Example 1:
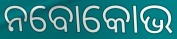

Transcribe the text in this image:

ନବୋକୋଭ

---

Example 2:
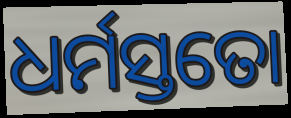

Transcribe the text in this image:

ଧର୍ମସ୍ତତୋ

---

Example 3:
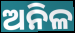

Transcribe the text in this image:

ଅନିଳ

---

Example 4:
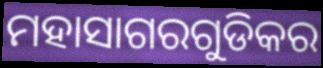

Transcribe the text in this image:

ମହାସାଗରଗୁଡିକର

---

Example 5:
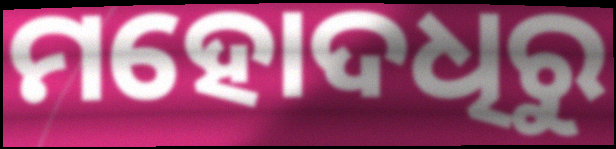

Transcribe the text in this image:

ମହୋଦଧିରୁ